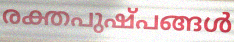
രക്തപുഷ്പങ്ങൾ